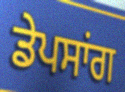
ਡੇਪਸਾਂਗ